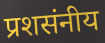
प्रशसंनीय